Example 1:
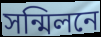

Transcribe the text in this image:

সন্মিলনে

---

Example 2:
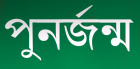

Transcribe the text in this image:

পুনৰ্জন্ম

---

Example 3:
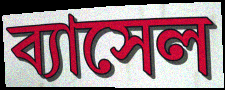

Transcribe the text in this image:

ব্যাসেল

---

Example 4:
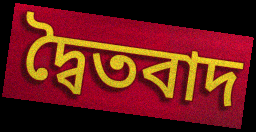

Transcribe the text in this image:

দ্বৈতবাদ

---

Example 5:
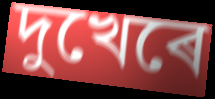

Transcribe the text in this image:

দুখেৰে